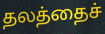
தலத்தைச்